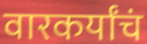
वारकर्यांचं